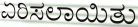
ಏರಿಸಲಾಯಿತು